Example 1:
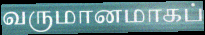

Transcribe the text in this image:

வருமானமாகப்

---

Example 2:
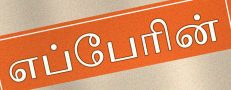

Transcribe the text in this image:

எப்பேரின்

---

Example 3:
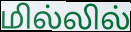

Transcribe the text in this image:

மில்லில்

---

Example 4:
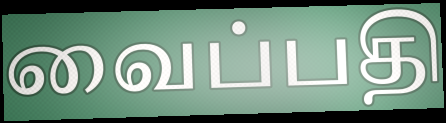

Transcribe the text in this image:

வைப்பதி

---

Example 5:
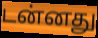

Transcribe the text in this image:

டன்னது